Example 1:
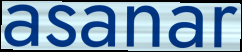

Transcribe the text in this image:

asanar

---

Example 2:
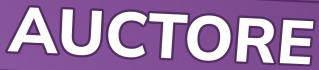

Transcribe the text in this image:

AUCTORE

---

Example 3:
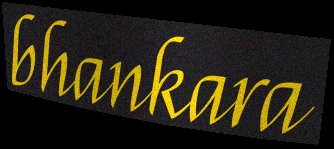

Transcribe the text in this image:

bhankara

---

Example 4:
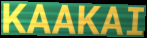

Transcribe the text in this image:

KAAKAI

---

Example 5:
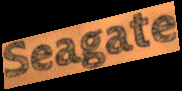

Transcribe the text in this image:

Seagate